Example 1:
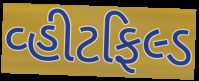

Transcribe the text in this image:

વ્હીટફિલ્ડ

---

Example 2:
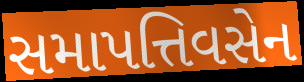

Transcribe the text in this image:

સમાપત્તિવસેન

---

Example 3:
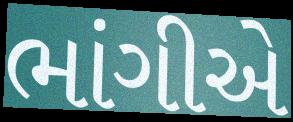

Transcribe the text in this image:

ભાંગીએ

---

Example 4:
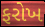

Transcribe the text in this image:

ફરોખ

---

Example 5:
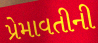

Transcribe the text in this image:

પ્રેમાવતીની